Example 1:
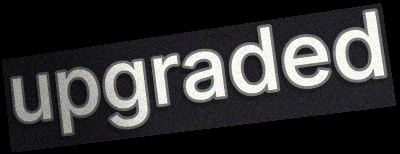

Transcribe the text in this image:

upgraded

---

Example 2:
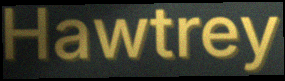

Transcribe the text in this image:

Hawtrey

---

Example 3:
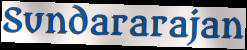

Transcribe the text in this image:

Sundararajan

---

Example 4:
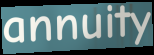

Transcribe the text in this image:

annuity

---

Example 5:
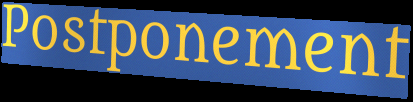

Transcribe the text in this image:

Postponement